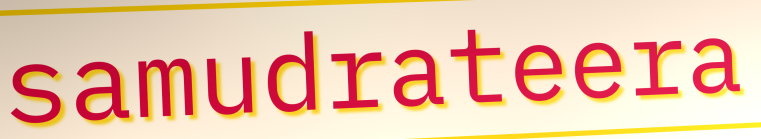
samudrateera